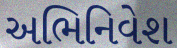
અભિનિવેશ